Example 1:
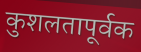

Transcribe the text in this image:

कुशलतापूर्वक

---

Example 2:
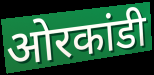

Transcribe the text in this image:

ओरकांडी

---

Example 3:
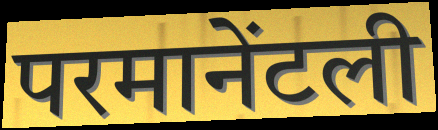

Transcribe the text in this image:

परमानेंटली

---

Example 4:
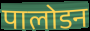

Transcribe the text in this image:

पालोडन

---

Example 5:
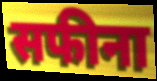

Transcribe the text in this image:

सफीना